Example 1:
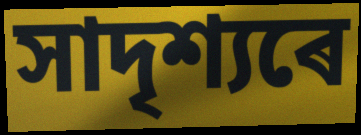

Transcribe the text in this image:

সাদৃশ্যৰে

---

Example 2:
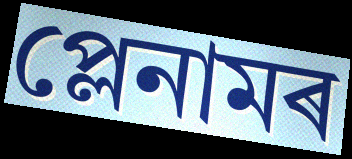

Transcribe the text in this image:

প্লেনামৰ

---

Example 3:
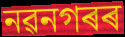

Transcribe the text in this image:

নৱনগৰৰ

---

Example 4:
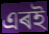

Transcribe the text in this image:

এৰই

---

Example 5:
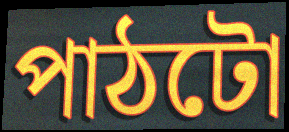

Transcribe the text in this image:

পাঠটো